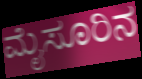
ಮೈಸೂರಿನ